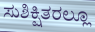
ಸುಶಿಕ್ಷಿತರಲ್ಲೂ